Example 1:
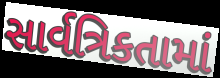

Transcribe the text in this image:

સાર્વત્રિકતામાં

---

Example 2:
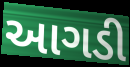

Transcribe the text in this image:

આગડી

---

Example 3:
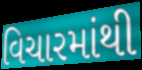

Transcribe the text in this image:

વિચારમાંથી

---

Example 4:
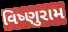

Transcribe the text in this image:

વિષ્ણુરામ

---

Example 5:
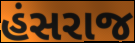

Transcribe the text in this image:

હંસરાજ